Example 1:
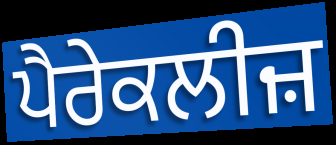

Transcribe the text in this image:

ਪੈਰੇਕਲੀਜ਼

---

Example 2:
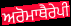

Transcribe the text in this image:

ਅਰੋਮਾਥੈਰੇਪੀ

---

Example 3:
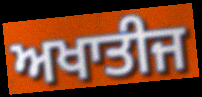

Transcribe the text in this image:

ਅਖਾਤੀਜ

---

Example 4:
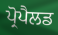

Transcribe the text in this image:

ਪ੍ਰੋਪੈਲਡ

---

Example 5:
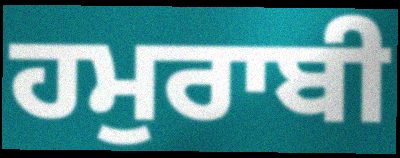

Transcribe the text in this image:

ਹਮੁਰਾਬੀ